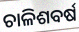
ଚାଳିଶବର୍ଷ